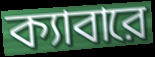
ক্যাবারে